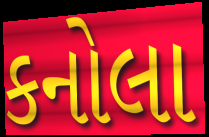
કનોલા